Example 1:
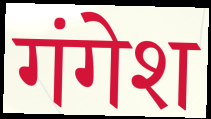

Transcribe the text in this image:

गंगेश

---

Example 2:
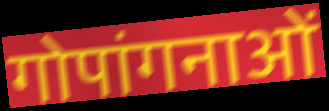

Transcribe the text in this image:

गोपांगनाओं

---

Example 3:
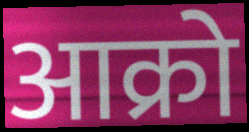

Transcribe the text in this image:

आक्रो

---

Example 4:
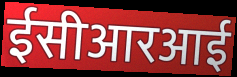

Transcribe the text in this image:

ईसीआरआई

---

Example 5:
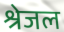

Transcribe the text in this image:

श्रेजल